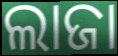
ଲାଜା